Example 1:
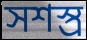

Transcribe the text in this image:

সশস্ত্ৰ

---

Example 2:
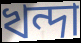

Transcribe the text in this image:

খন্দা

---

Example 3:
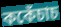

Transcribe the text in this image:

ককেঁচাচ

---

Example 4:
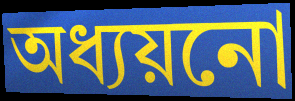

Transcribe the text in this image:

অধ্যয়নো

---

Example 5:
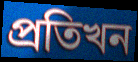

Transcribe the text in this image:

প্ৰতিখন